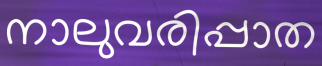
നാലുവരിപ്പാത